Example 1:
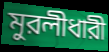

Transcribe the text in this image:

মুরলীধারী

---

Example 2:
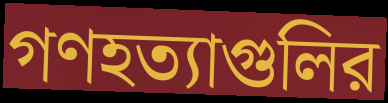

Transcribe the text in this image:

গণহত্যাগুলির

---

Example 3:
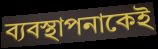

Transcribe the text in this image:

ব্যবস্থাপনাকেই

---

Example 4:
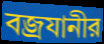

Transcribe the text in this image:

বজ্রযানীর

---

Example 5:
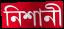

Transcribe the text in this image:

নিশানী